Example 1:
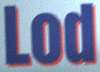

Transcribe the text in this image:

Lod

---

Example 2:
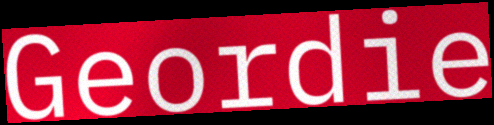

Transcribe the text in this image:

Geordie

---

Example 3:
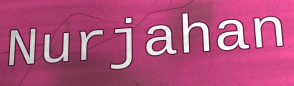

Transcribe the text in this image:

Nurjahan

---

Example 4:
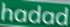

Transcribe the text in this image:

hadad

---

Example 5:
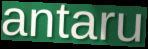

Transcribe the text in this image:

antaru